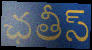
ఛతీస్